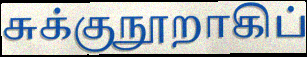
சுக்குநூறாகிப்